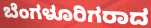
ಬೆಂಗಳೂರಿಗರಾದ